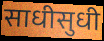
साधीसुधी